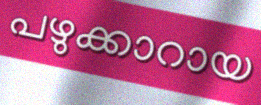
പഴുക്കാറായ